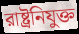
রাষ্ট্রনিযুক্ত